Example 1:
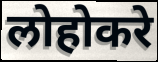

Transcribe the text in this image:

लोहोकरे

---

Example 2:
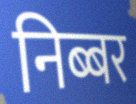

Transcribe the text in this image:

निब्बर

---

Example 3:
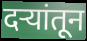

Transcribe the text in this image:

दऱ्यांतून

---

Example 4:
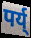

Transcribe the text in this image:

पर्य्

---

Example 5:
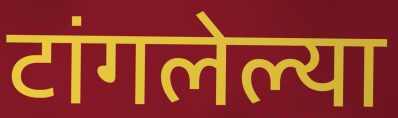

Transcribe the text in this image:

टांगलेल्या